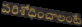
పరిశోధించాలంటే